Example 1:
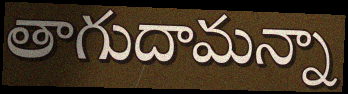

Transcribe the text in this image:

తాగుదామన్నా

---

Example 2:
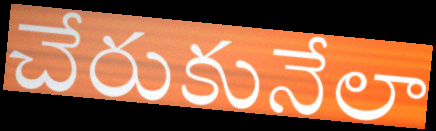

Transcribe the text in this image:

చేరుకునేలా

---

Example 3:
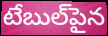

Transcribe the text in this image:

టేబుల్‌పైన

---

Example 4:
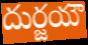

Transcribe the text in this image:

దుర్జయౌ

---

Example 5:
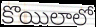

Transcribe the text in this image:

కొయిలాలో